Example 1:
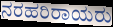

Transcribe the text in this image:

ನರಹರಿರಾಯರು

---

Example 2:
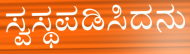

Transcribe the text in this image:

ಸ್ವಸ್ಥಪಡಿಸಿದನು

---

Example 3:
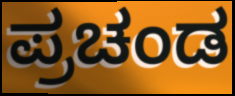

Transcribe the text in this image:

ಪ್ರಚಂಡ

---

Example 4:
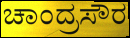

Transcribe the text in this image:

ಚಾಂದ್ರಸೌರ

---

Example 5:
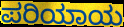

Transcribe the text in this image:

ಪರಿಯಾಯ